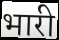
भारी